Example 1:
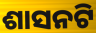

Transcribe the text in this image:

ଶାସନଟି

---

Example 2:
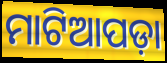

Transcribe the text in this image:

ମାଟିଆପଡ଼ା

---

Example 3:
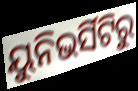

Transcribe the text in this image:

ୟୁନିଭର୍ସିଟିରୁ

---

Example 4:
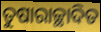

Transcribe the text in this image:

ତୁଷାରାଚ୍ଛାଦିତ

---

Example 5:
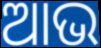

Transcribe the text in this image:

ଆଭ